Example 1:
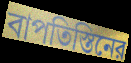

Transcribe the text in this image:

বাপতিস্তিনের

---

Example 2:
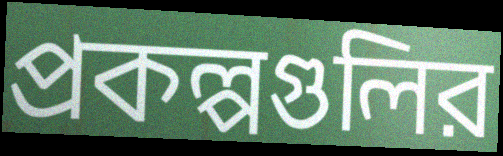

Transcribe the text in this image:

প্রকল্পগুলির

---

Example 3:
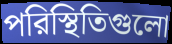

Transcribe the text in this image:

পরিস্থিতিগুলো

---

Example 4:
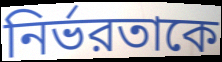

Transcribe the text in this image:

নির্ভরতাকে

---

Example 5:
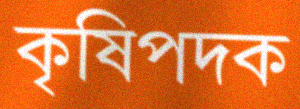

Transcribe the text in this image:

কৃষিপদক